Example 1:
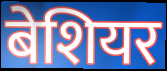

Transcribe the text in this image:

बेशियर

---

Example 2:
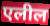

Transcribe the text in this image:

एलील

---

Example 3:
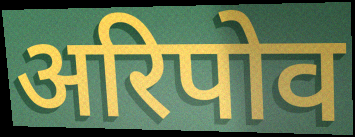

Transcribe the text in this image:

अरिपोव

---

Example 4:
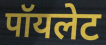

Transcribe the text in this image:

पॉयलेट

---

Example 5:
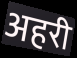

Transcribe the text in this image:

अहरी